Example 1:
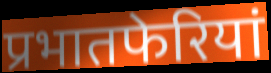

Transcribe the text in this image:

प्रभातफेरियां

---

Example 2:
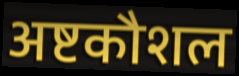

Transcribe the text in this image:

अष्टकौशल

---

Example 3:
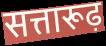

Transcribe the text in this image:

सत्तारूढ़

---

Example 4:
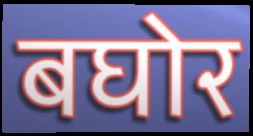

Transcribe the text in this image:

बघोर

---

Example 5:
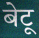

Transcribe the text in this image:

बेटू